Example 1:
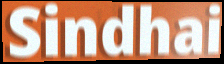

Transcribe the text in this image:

Sindhai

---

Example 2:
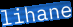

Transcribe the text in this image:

lihane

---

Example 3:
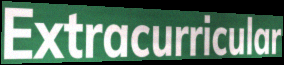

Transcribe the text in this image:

Extracurricular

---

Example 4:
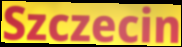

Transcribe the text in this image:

Szczecin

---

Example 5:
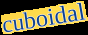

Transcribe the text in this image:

cuboidal